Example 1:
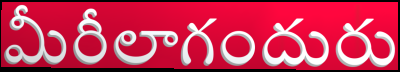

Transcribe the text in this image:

మీరీలాగందురు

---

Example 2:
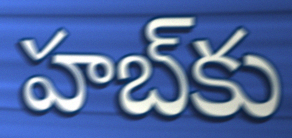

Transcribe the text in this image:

హబ్‌కు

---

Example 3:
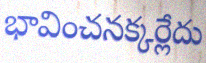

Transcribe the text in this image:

భావించనక్కర్లేదు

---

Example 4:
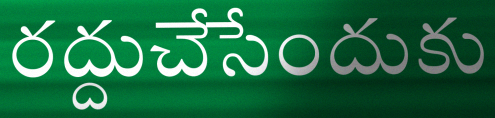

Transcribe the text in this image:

రద్దుచేసేందుకు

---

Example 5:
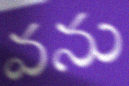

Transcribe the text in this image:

వను